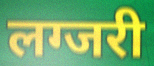
लग्जरी